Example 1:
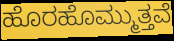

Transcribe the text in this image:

ಹೊರಹೊಮ್ಮುತ್ತವೆ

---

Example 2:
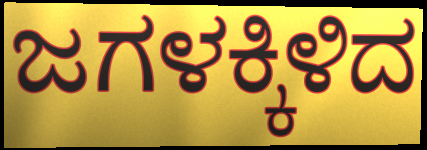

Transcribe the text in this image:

ಜಗಳಕ್ಕಿಳಿದ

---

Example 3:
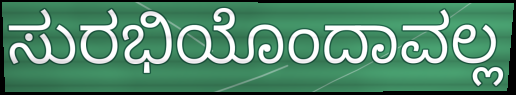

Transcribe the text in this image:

ಸುರಭಿಯೊಂದಾವಲ್ಲ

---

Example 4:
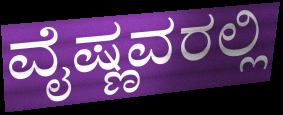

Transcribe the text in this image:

ವೈಷ್ಣವರಲ್ಲಿ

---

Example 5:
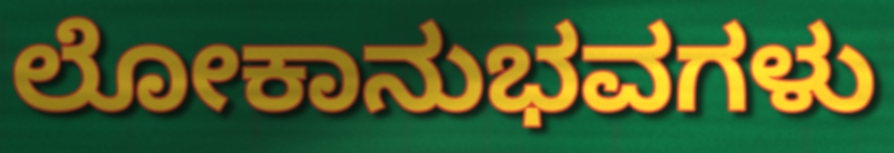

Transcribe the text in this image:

ಲೋಕಾನುಭವಗಳು